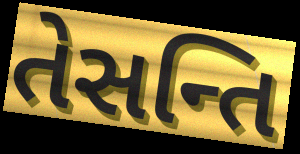
તેસન્તિ